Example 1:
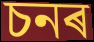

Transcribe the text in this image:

চনৰ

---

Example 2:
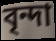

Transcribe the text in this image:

বৃন্দা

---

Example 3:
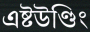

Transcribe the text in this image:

এষ্টউণ্ডিং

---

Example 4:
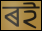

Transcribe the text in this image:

ৰই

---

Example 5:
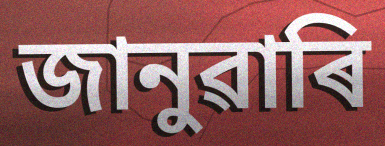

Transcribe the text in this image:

জানুৱাৰি